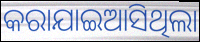
କରାଯାଇଆସିଥିଲା